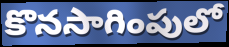
కొనసాగింపులో